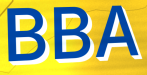
BBA